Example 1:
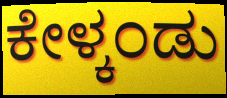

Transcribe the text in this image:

ಕೇಳ್ಕಂಡು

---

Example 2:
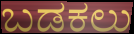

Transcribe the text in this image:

ಬಡಕಲು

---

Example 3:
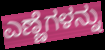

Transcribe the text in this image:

ಎಣ್ಣೆಗಳನ್ನು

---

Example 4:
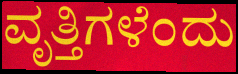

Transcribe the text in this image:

ವೃತ್ತಿಗಳೆಂದು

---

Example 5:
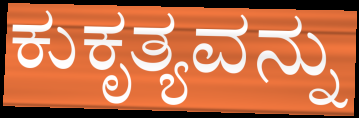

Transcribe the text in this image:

ಕುಕೃತ್ಯವನ್ನು